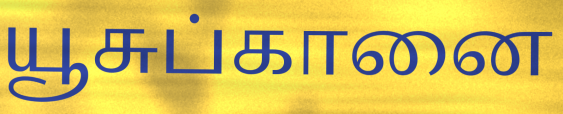
யூசுப்கானை